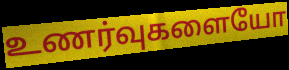
உணர்வுகளையோ